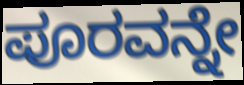
ಪೂರವನ್ನೇ